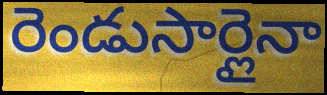
రెండుసార్లైనా